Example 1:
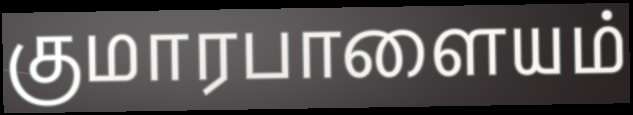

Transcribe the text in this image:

குமாரபாளையம்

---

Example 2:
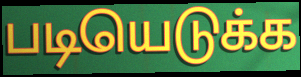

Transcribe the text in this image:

படியெடுக்க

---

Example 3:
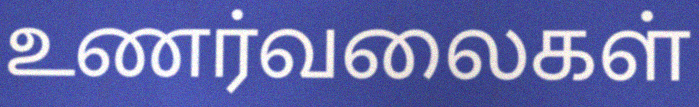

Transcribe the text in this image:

உணர்வலைகள்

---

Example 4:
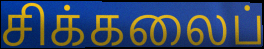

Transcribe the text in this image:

சிக்கலைப்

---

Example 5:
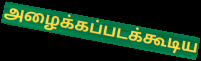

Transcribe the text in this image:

அழைக்கப்படக்கூடிய